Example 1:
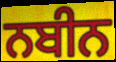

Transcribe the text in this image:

ਨਬੀਨ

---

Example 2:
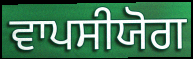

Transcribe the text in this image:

ਵਾਪਸੀਯੋਗ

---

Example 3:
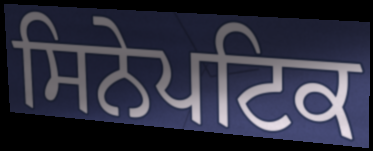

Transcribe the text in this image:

ਸਿਨੇਪਟਿਕ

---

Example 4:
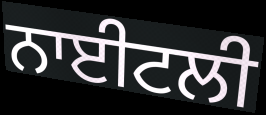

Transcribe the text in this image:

ਨਾਈਟਲੀ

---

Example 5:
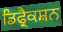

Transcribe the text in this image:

ਡਿਫ੍ਰੈਕਸ਼ਨ